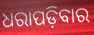
ଧରାପଡ଼ିବାର